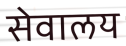
सेवालय